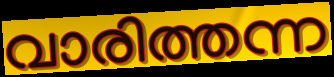
വാരിത്തന്ന